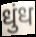
धुंध